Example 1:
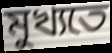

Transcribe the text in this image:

মুখ্যতে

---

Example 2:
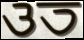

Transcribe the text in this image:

ওত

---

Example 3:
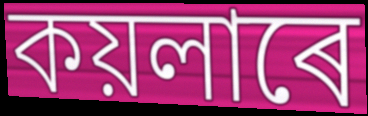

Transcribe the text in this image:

কয়লাৰে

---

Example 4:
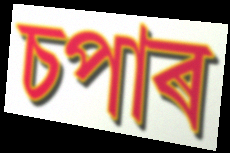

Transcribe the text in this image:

চপাৰ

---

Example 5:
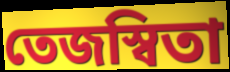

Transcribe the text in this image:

তেজস্বিতা